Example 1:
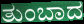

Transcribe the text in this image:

ತುಂಬಾದ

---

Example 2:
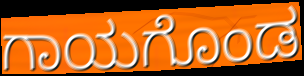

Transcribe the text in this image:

ಗಾಯಗೊಂಡ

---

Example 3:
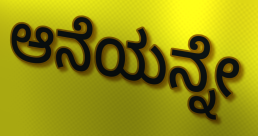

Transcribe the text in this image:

ಆನೆಯನ್ನೇ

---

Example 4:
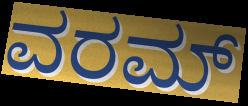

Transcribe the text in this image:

ವರಮ್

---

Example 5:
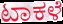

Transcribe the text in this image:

ಟಾಕಳೆ